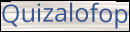
Quizalofop